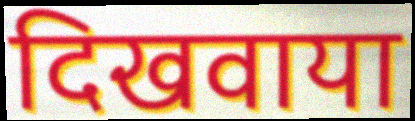
दिखवाया